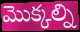
మొక్కల్ని